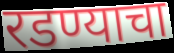
रडण्याचा